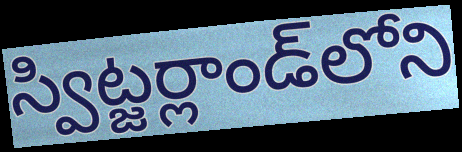
స్విట్జర్లాండ్‌లోని